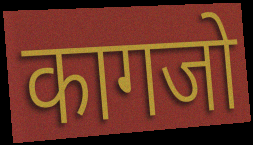
कागजो